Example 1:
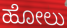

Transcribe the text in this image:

ಹೋಲು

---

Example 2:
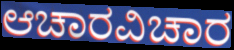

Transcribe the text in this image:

ಆಚಾರವಿಚಾರ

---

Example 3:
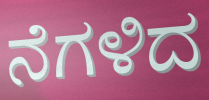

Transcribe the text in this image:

ನೆಗಳಿದ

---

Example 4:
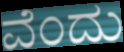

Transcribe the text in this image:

ವೆಂದು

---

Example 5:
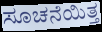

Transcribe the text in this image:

ಸೂಚನೆಯಿತ್ತ